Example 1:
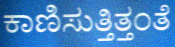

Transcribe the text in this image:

ಕಾಣಿಸುತ್ತಿತ್ತಂತೆ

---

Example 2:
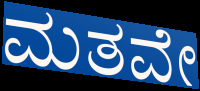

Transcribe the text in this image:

ಮತವೇ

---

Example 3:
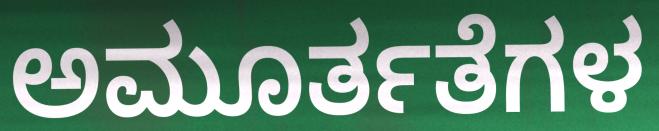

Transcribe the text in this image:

ಅಮೂರ್ತತೆಗಳ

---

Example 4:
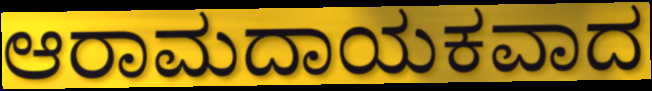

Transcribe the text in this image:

ಆರಾಮದಾಯಕವಾದ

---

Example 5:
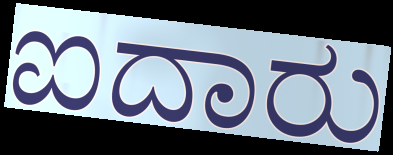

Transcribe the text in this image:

ಐದಾರು